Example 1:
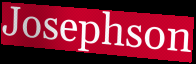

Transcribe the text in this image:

Josephson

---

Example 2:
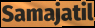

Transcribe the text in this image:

Samajatil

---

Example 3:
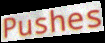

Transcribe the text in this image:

Pushes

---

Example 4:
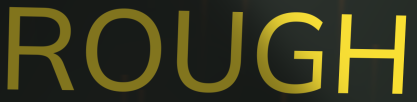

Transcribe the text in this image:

ROUGH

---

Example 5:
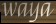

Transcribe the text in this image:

waya